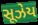
સૂઝેય